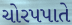
ચોરપપાતે